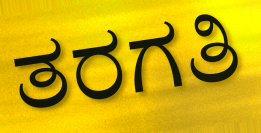
ತರಗತಿ